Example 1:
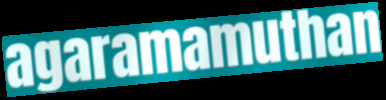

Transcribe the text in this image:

agaramamuthan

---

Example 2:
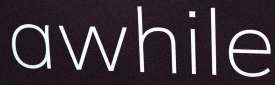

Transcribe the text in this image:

awhile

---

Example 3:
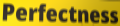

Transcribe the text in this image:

Perfectness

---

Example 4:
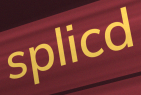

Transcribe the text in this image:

splicd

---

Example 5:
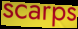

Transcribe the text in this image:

scarps